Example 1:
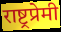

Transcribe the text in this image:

राष्ट्रप्रेमी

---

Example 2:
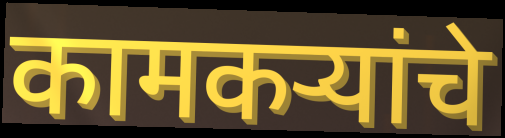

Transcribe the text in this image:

कामकऱ्यांचे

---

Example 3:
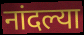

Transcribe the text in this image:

नांदल्या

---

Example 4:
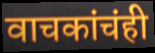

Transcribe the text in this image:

वाचकांचंही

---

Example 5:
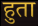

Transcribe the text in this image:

हुता